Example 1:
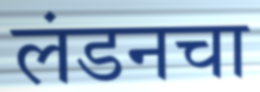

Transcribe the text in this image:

लंडनचा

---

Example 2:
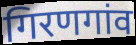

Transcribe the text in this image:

गिरणगांव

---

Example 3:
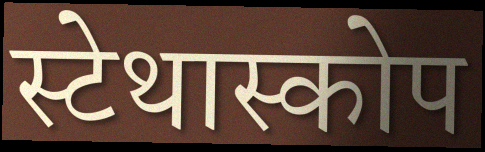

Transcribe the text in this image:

स्टेथास्कोप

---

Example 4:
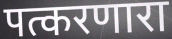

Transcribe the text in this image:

पत्करणारा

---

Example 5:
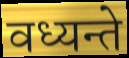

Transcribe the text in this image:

वध्यन्ते